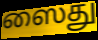
ஸைது